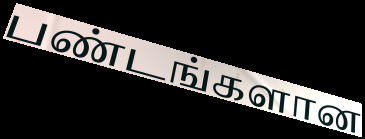
பண்டங்களான